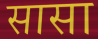
सासा